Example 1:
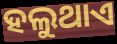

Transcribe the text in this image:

ହଲୁଥାଏ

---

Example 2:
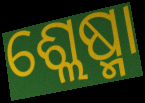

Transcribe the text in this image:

ଶ୍ଲେଷ୍ମା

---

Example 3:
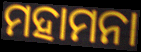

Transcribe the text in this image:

ମହାମନା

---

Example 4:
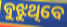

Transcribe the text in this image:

ବୁଝୁଥିବେ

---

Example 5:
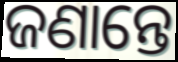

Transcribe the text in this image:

ଜଣାନ୍ତେ